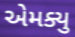
એમક્યુ